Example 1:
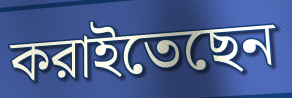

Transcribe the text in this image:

করাইতেছেন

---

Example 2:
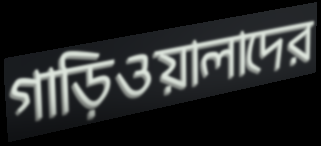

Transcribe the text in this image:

গাড়িওয়ালাদের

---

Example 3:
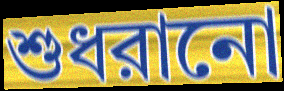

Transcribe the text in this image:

শুধরানো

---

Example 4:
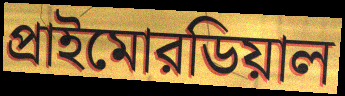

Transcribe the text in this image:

প্রাইমোরডিয়াল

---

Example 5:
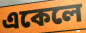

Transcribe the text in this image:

একেলে